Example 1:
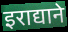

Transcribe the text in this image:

इराद्याने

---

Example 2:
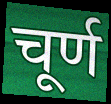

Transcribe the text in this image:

चूर्ण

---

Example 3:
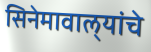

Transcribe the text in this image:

सिनेमावाल्यांचे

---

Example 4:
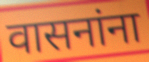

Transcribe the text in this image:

वासनांना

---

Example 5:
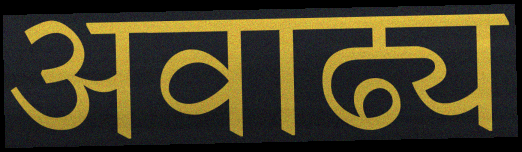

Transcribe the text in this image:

अवाढ्य